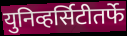
युनिव्हर्सिटीतर्फे